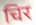
चिर